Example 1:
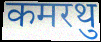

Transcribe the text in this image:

कमरथु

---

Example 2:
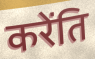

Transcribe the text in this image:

करेंति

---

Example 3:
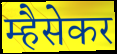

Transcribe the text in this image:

म्हैसेकर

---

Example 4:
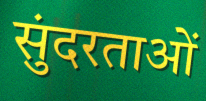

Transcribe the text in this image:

सुंदरताओं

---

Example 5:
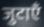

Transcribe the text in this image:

जुटाएँ